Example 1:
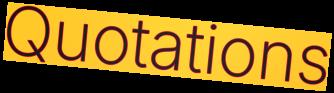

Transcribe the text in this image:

Quotations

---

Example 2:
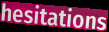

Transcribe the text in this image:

hesitations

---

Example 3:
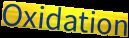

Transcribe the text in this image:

Oxidation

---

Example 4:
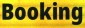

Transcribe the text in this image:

Booking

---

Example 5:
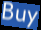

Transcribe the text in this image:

Buy